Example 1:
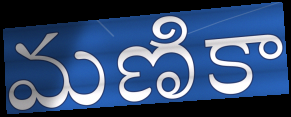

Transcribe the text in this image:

మణికా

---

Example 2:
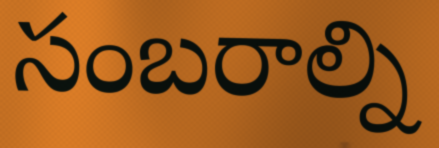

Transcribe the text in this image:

సంబరాల్ని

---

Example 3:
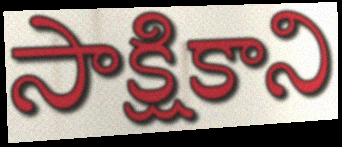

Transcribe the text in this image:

సాక్షికాని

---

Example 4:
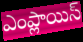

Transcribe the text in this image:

ఎంప్లాయిస్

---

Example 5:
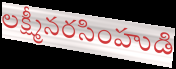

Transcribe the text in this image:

లక్ష్మీనరసింహుడి